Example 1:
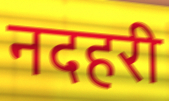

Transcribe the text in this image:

नदहरी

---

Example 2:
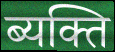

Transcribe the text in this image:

ब्यक्ति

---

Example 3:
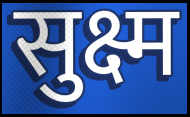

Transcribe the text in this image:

सुक्ष्म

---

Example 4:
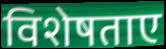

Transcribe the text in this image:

विशेषताए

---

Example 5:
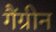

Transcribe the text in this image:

गैंग्रीन